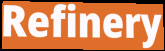
Refinery